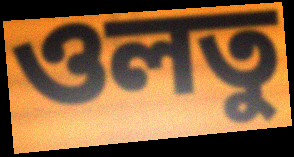
ওলতু